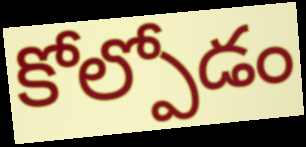
కోల్పోడం